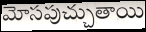
మోసపుచ్చుతాయి